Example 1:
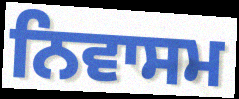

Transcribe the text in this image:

ਨਿਵਾਸਮ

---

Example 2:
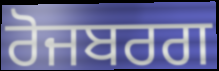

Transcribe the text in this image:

ਰੋਜਬਰਗ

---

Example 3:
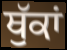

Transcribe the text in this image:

ਥੁੱਕਾਂ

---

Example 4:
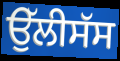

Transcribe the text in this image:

ਉੱਲੀਸੱਸ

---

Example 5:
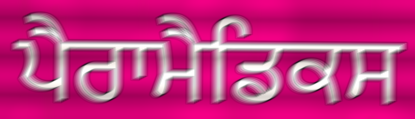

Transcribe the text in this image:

ਪੈਰਾਮੈਡਿਕਸ